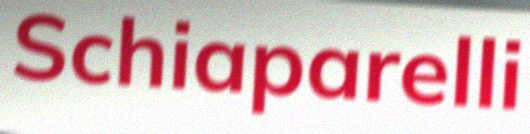
Schiaparelli